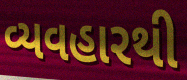
વ્યવહારથી